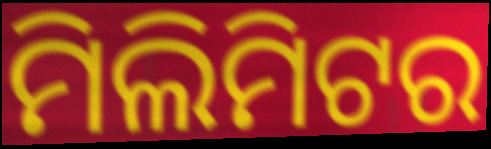
ମିଲିମିଟର